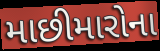
માછીમારોના